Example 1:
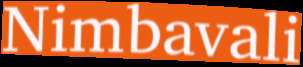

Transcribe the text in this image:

Nimbavali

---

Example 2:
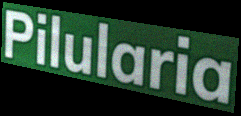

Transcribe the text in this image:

Pilularia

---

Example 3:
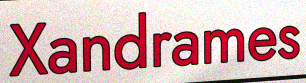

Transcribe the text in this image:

Xandrames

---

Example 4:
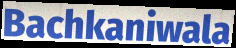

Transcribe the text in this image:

Bachkaniwala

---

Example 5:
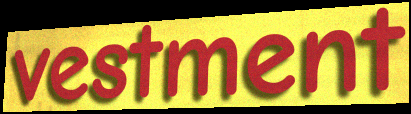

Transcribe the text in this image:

vestment